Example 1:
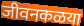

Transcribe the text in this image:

जीवनकळया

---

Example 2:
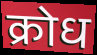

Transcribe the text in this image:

क्रोध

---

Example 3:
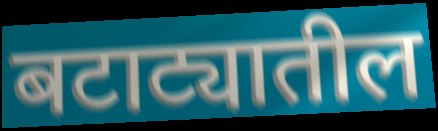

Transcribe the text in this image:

बटाट्यातील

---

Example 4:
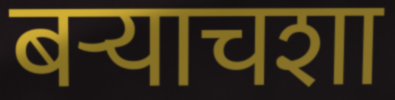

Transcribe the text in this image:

बर्‍याचशा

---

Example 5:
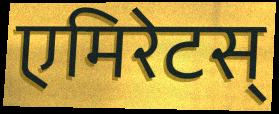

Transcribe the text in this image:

एमिरेटस्